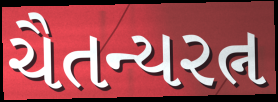
ચૈતન્યરત્ન